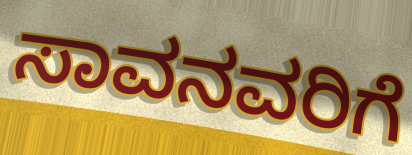
ಸಾವನವರಿಗೆ